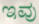
ಇವು